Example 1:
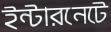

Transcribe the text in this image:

ইন্টারনেটে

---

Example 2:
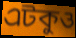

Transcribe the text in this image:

এটকুও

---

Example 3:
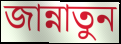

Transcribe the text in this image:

জান্নাতুন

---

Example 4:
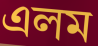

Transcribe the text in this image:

এলম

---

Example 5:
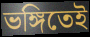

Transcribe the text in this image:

ভঙ্গিতেই